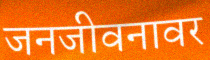
जनजीवनावर